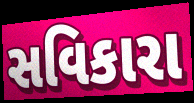
સવિકારા